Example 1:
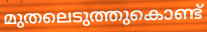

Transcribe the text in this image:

മുതലെടുത്തുകൊണ്ട്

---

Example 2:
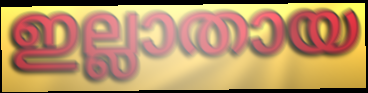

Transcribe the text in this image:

ഇല്ലാതായ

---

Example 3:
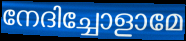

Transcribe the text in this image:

നേദിച്ചോളാമേ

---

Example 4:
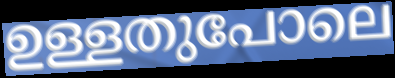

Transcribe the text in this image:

ഉള്ളതുപോലെ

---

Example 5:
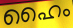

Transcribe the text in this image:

ഹൈം